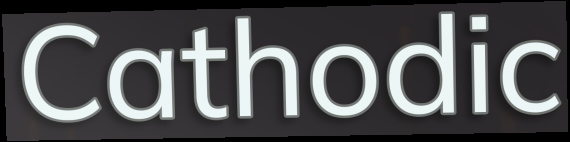
Cathodic